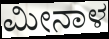
ಮೀನಾಳ